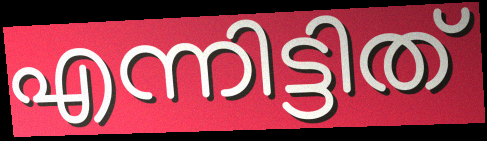
എന്നിട്ടിത്